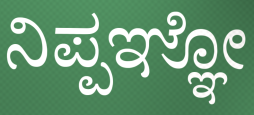
ನಿಪ್ಪಞ್ಞೋ